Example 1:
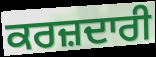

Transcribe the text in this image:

ਕਰਜ਼ਦਾਰੀ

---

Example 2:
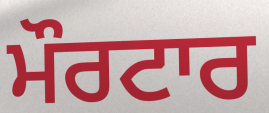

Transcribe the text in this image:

ਮੌਰਟਾਰ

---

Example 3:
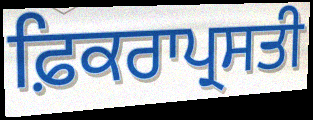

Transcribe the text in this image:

ਫ਼ਿਕਰਾਪ੍ਰਸਤੀ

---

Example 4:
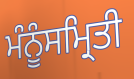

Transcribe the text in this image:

ਮੰਨੂੰਸਮ੍ਰਿਤੀ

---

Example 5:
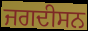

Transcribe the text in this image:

ਜਗਦੀਸਨ